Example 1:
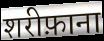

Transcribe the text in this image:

शरीफ़ाना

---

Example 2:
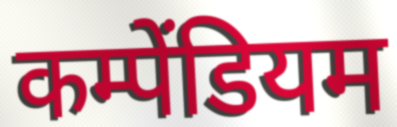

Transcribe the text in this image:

कम्पेंडियम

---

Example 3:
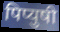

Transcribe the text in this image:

पिप्युषी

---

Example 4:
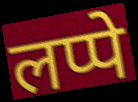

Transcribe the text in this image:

लप्पे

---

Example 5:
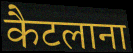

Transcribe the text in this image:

कैटलाना